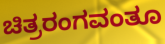
ಚಿತ್ರರಂಗವಂತೂ